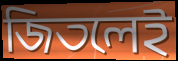
জিতলেই